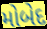
મોબેદ